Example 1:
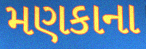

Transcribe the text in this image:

મણકાના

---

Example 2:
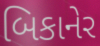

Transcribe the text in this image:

બિકાનેર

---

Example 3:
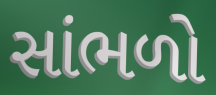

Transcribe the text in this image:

સાંભળો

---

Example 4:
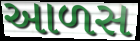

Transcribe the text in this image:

આળસ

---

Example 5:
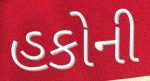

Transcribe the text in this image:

હકોની